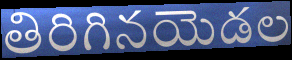
తిరిగినయెడల